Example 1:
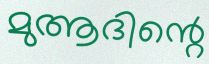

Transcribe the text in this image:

മുആദിന്റെ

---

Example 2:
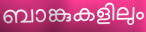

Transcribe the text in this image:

ബാങ്കുകളിലും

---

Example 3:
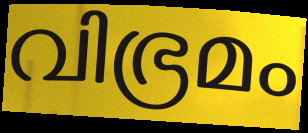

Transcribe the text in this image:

വിഭ്രമം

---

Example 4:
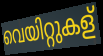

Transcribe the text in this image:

വെയിറ്റുകള്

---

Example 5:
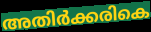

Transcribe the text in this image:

അതിർക്കരികെ